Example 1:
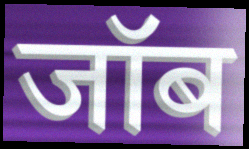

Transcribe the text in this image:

जॉब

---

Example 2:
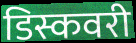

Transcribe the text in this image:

डिस्कवरी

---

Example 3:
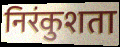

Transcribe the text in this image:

निरंकुशता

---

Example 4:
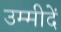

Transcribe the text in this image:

उम्मीदें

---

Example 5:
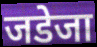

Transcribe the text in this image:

जडेजा